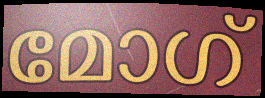
മോഗ്